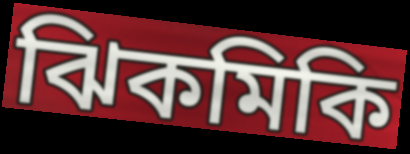
ঝিকমিকি